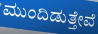
ಮುಂದಿಡುತ್ತೇವೆ